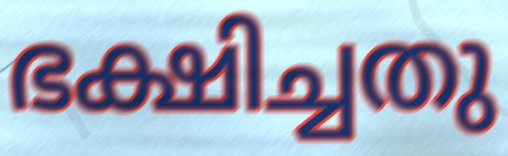
ഭക്ഷിച്ചതു